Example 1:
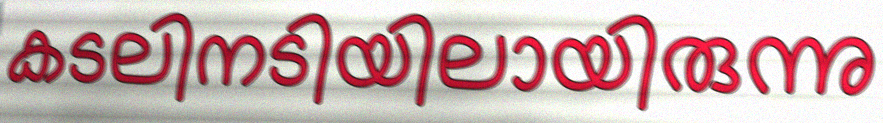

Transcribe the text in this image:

കടലിനടിയിലായിരുന്നു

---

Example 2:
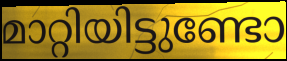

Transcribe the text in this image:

മാറ്റിയിട്ടുണ്ടോ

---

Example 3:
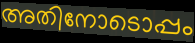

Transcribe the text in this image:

അതിനോടൊപ്പം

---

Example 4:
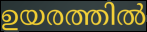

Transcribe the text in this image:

ഉയരത്തിൽ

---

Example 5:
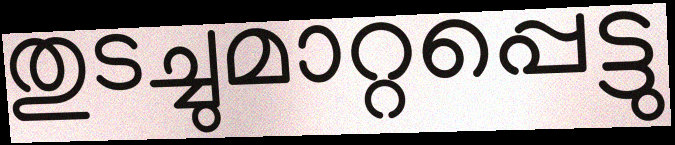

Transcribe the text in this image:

തുടച്ചുമാറ്റപ്പെട്ടു